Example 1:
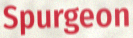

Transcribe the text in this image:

Spurgeon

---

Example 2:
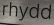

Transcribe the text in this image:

rhydd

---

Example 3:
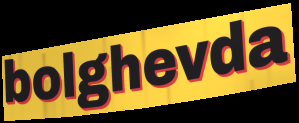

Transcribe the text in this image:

bolghevda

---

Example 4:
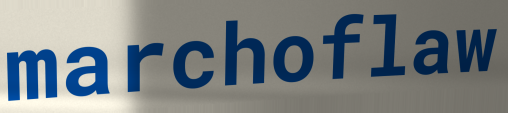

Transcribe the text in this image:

marchoflaw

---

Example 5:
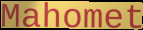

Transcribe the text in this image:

Mahomet